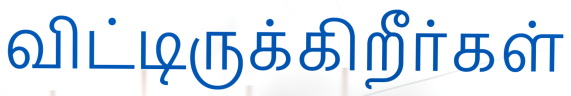
விட்டிருக்கிறீர்கள்